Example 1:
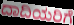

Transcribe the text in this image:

ದಾದಿಯರಿಗೆ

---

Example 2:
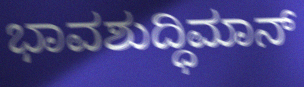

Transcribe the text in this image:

ಭಾವಶುದ್ಧಿಮಾನ್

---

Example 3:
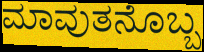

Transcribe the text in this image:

ಮಾವುತನೊಬ್ಬ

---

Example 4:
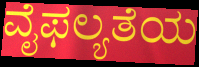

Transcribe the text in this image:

ವೈಫಲ್ಯತೆಯ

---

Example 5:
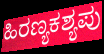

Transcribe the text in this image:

ಹಿರಣ್ಯಕಶ್ಯಪು